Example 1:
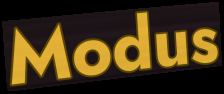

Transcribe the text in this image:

Modus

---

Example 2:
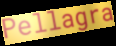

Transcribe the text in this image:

Pellagra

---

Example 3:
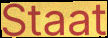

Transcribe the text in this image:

Staat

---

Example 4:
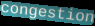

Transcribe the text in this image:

congestion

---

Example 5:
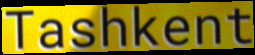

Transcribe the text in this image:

Tashkent